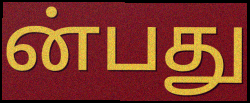
ன்பது